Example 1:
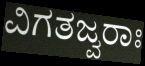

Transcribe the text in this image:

ವಿಗತಜ್ವರಾಃ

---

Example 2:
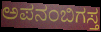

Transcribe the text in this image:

ಅಪನಂಬಿಗಸ್ತ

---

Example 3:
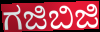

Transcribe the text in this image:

ಗಜಿಬಿಜಿ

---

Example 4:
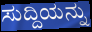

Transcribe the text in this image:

ಸುದ್ದಿಯನ್ನು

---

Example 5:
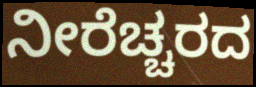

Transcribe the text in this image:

ನೀರೆಚ್ಚರದ